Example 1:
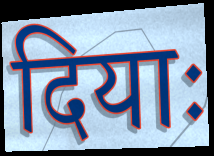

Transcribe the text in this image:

दियाः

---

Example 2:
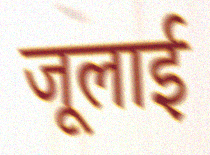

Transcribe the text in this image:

जूलाई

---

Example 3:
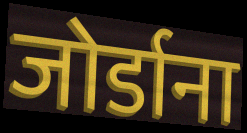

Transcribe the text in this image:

जोर्डाना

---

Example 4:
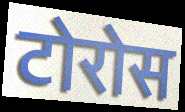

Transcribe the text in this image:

टोरोस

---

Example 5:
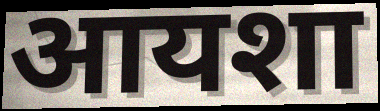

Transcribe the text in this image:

आयशा